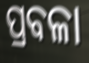
ପ୍ରବଳା